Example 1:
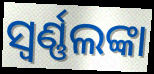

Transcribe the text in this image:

ସ୍ବର୍ଣ୍ଣଲଙ୍କା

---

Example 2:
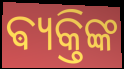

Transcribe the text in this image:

ଵ୍ୟକ୍ତିଙ୍କ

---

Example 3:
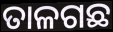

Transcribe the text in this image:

ତାଳଗଛ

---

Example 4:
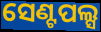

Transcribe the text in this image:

ସେଣ୍ଟପଲ୍ସ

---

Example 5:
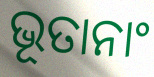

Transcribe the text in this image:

ଭୂତାନାଂ